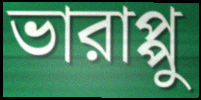
ভারাপ্পু